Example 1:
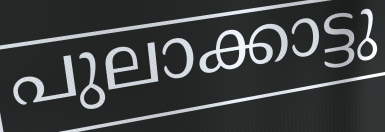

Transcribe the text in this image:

പുലാക്കാട്ടു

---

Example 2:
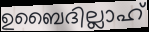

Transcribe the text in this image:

ഉബൈദില്ലാഹ്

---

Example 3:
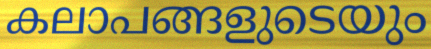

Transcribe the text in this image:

കലാപങ്ങളുടെയും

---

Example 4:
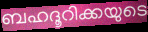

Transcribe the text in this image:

ബഹദൂറിക്കയുടെ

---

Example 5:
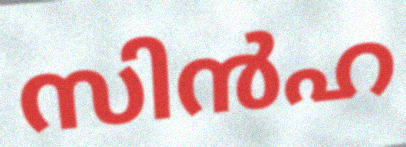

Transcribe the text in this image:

സിൻഹ